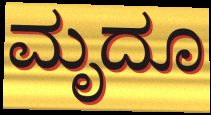
ಮೃದೂ